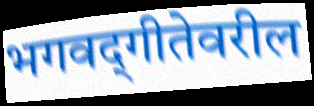
भगवद्‌गीतेवरील